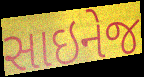
સાઇનેજ